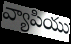
వ్యాపియు